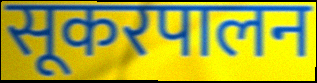
सूकरपालन